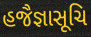
હજૈજ્ઞાસૂચિ